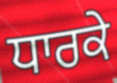
ਧਾਰਕੇ